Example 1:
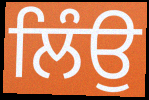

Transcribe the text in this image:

ਲਿੰਉ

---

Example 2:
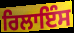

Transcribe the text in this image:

ਰਿਲਾਇੰਸ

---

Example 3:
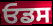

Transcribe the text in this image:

ਓਡਸ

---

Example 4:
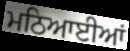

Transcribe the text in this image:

ਮਠਿਆਈਆਂ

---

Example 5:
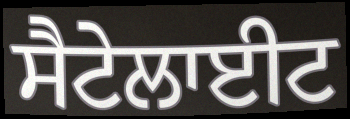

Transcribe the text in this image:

ਸੈਟੇਲਾਈਟ